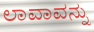
ಲಾವಾವನ್ನು